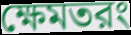
ক্ষেমতরং